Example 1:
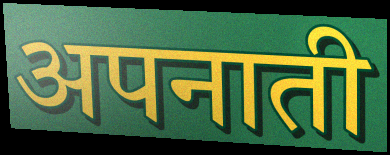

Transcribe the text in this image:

अपनाती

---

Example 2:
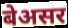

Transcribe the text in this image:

बेअसर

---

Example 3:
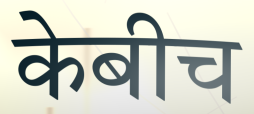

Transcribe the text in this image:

केबीच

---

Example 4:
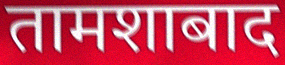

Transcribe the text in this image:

तामशाबाद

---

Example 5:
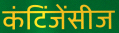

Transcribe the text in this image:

कंटिंजेंसीज